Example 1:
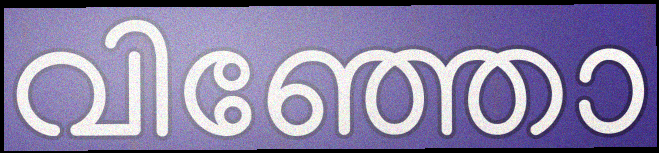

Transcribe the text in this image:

വിഞ്ഞോ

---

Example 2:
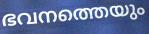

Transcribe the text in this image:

ഭവനത്തെയും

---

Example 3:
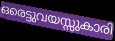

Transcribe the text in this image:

ഒരെട്ടുവയസ്സുകാരി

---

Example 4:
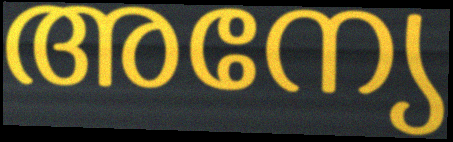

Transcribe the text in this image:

അന്യേ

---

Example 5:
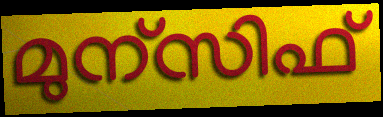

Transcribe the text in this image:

മുന്സിഫ്